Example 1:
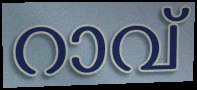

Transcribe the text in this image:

റാവ്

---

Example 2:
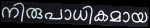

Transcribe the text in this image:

നിരുപാധികമായ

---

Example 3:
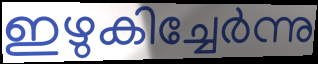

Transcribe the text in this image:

ഇഴുകിച്ചേർന്നു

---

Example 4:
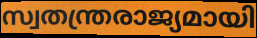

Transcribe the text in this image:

സ്വതന്ത്രരാജ്യമായി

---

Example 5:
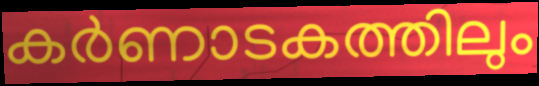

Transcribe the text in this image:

കർണാടകത്തിലും